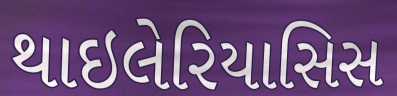
થાઇલેરિયાસિસ